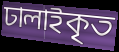
ঢালাইকৃত